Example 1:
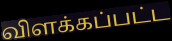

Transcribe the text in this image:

விளக்கப்பட்ட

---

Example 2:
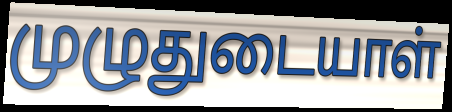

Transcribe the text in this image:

முழுதுடையாள்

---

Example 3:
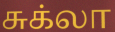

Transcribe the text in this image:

சுக்லா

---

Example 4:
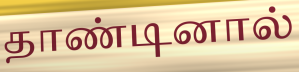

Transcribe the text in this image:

தாண்டினால்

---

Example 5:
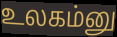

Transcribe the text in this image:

உலகம்னு